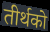
तीर्थको